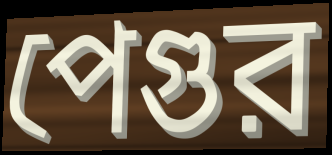
পেগুর